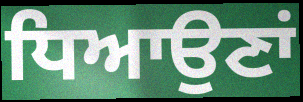
ਧਿਆਉਣਾਂ